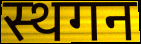
स्थगन